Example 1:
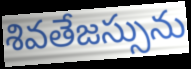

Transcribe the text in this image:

శివతేజస్సును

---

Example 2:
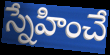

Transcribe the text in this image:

స్నేహించే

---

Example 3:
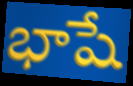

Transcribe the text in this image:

భాషే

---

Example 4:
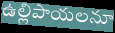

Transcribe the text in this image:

ఉల్లిపాయలనూ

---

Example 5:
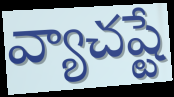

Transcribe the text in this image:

వ్యాచష్టే